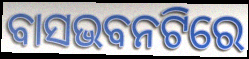
ବାସଭବନଟିରେ